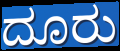
ದೂರು